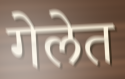
गेलेत